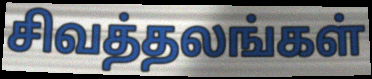
சிவத்தலங்கள்